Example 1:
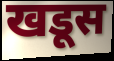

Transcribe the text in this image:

खडूस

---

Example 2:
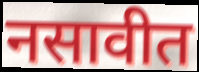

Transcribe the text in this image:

नसावीत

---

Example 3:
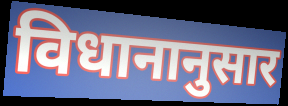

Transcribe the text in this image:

विधानानुसार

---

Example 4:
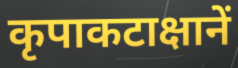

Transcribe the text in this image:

कृपाकटाक्षानें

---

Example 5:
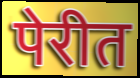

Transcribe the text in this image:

पेरीत